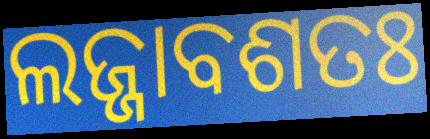
ଲଜ୍ଜାବଶତଃ